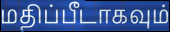
மதிப்பீடாகவும்